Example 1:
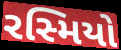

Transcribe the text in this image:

રસ્મિયો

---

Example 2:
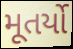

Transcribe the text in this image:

મૂતર્યો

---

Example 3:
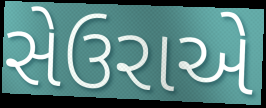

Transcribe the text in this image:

સેઉરાએ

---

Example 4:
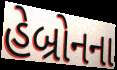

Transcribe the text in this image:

હેબ્રોનના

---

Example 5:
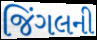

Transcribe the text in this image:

જિંગલની